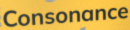
Consonance